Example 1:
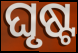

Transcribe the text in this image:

ଘୃଷ୍ଟ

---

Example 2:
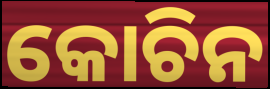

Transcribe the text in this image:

କୋଚିନ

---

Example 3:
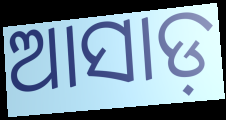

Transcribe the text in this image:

ଆସାଡ଼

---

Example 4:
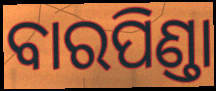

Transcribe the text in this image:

ବାରପିଣ୍ଡା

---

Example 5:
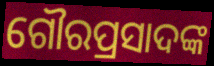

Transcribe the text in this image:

ଗୌରପ୍ରସାଦଙ୍କ